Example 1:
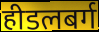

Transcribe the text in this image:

हीडलबर्ग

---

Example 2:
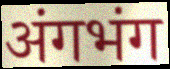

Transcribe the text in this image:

अंगभंग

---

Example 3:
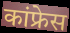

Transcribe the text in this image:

कांफ्रेस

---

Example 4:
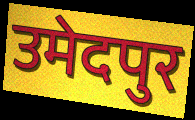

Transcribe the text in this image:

उमेदपुर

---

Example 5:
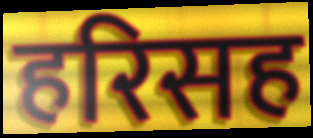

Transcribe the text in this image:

हरिसह